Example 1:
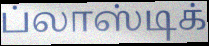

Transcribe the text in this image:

ப்லாஸ்டிக்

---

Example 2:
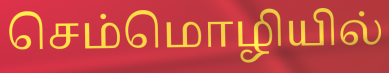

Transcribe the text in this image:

செம்மொழியில்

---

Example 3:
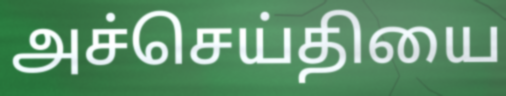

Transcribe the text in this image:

அச்செய்தியை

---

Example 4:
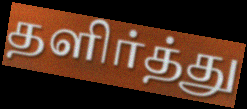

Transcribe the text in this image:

தளிர்த்து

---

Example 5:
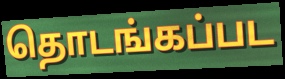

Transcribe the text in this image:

தொடங்கப்பட